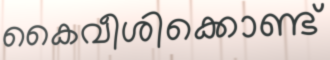
കൈവീശിക്കൊണ്ട്